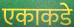
एकाकडे